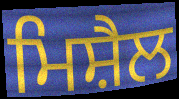
ਮਿਸ਼ੈਲ